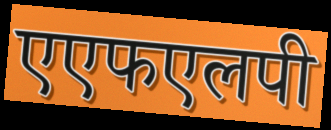
एएफएलपी